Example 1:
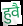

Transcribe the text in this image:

हुवै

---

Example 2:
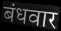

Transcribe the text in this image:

बंधवार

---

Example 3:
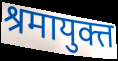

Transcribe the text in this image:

श्रमायुक्त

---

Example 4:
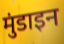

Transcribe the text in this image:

मुंडाइन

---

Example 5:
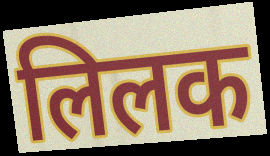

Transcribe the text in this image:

लिलक